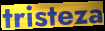
tristeza